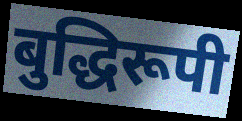
बुद्धिरूपी